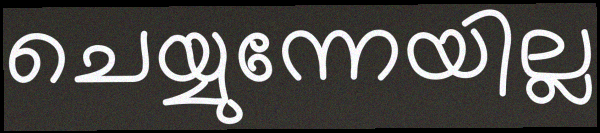
ചെയ്യുന്നേയില്ല